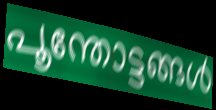
പൂന്തോട്ടങ്ങൾ